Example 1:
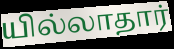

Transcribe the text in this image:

யில்லாதார்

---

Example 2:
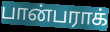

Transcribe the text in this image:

பான்பராக்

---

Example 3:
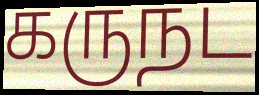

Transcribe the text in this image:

கருநட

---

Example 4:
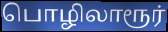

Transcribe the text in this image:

பொழிலாரூர்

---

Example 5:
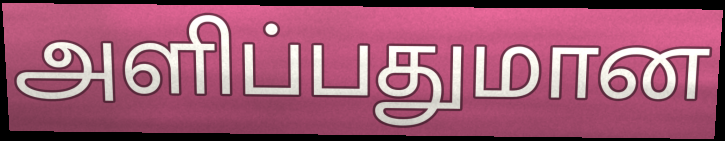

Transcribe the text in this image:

அளிப்பதுமான